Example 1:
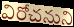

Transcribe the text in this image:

విరోచనుని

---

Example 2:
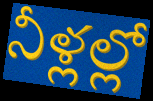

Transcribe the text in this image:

నీళ్లల్లో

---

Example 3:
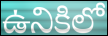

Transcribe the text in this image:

ఉనికిలో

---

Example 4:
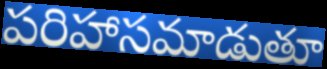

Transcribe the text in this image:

పరిహాసమాడుతూ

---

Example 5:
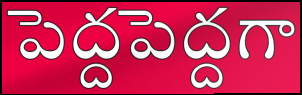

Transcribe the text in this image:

పెద్దపెద్దగా